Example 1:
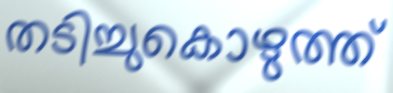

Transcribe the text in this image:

തടിച്ചുകൊഴുത്ത്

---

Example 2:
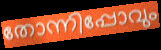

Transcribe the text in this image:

തോന്നിപ്പോവും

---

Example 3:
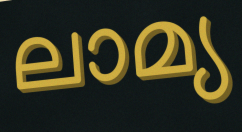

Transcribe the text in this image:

ലാമ്യ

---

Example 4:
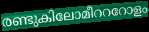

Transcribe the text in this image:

രണ്ടുകിലോമീറററോളം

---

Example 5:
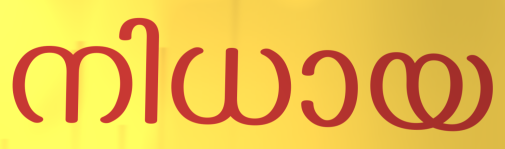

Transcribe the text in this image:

നിധായ